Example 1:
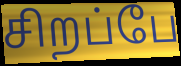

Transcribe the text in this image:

சிறப்பே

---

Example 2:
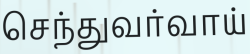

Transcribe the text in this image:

செந்துவர்வாய்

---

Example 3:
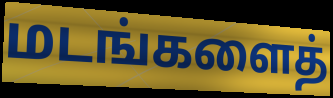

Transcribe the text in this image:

மடங்களைத்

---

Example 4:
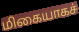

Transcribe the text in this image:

மிகையாகச்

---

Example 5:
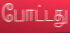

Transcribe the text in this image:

போட்டது